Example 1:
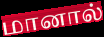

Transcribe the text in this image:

மானால்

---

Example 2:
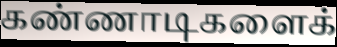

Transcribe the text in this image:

கண்ணாடிகளைக்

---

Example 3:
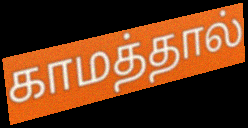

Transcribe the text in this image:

காமத்தால்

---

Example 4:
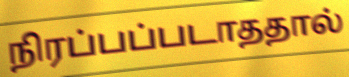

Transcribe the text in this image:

நிரப்பப்படாததால்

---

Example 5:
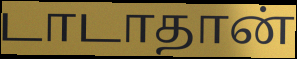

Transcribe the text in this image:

டாடாதான்